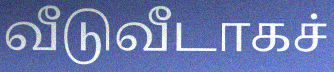
வீடுவீடாகச்